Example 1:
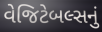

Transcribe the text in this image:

વેજિટેબલ્સનું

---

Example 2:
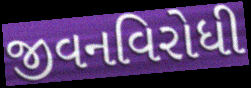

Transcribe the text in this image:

જીવનવિરોધી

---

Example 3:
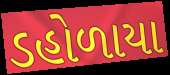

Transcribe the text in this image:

ડહોળાયા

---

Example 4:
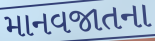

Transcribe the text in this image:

માનવજાતના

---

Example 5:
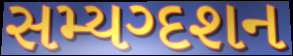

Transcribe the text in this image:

સમ્યગ્દશન